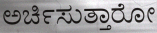
ಅರ್ಚಿಸುತ್ತಾರೋ